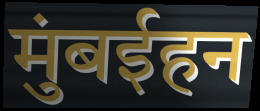
मुंबईहन